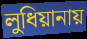
লুধিয়ানায়